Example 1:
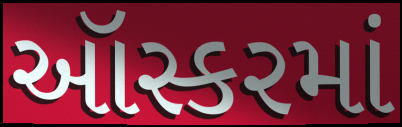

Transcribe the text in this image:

ઑસ્કરમાં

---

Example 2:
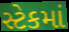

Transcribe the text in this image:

સ્ટેકમાં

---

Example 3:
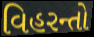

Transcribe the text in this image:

વિહરન્તો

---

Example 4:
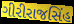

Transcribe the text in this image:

ગીરીરાજસિંહ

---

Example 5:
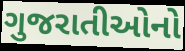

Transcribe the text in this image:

ગુજરાતીઓનો